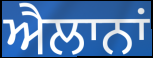
ਐਲਾਨਾਂ